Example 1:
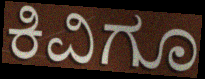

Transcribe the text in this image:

ಕಿವಿಗೂ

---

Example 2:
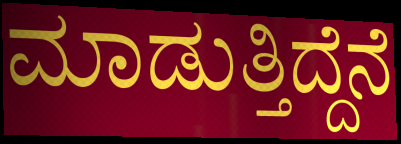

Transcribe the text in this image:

ಮಾಡುತ್ತಿದ್ದೆನೆ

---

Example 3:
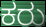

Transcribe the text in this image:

ಕರು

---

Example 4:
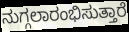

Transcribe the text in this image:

ನುಗ್ಗಲಾರಂಭಿಸುತ್ತಾರೆ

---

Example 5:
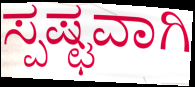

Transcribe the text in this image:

ಸ್ಪಷ್ಟವಾಗಿ